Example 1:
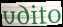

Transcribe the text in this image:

udito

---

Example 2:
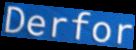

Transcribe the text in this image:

Derfor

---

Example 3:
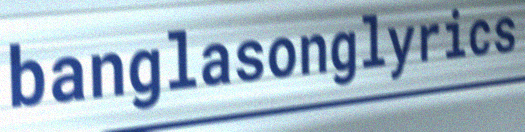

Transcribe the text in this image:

banglasonglyrics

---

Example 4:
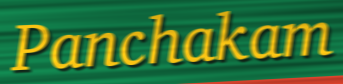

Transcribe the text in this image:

Panchakam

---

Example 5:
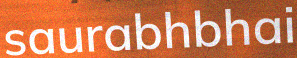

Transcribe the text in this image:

saurabhbhai